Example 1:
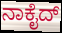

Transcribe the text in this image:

ನಾಕೈದ್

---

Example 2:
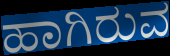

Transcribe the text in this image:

ಹಾಗಿರುವ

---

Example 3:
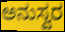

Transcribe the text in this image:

ಅನುಸ್ವರ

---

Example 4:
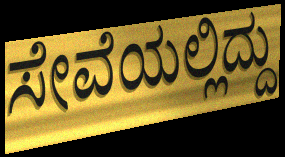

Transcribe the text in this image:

ಸೇವೆಯಲ್ಲಿದ್ದು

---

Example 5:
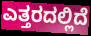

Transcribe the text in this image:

ಎತ್ತರದಲ್ಲಿದೆ